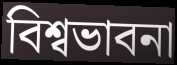
বিশ্বভাবনা